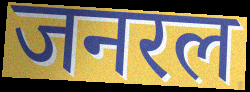
जनरल